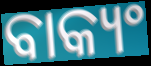
ବାକ୍ୟଂ